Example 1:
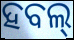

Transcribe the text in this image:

ହବଲ୍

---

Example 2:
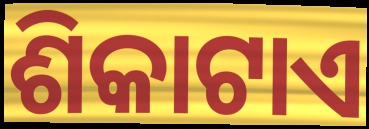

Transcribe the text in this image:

ଶିକାଟାଏ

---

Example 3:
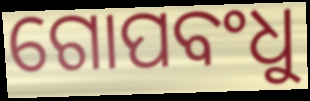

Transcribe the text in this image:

ଗୋପବଂଧୁ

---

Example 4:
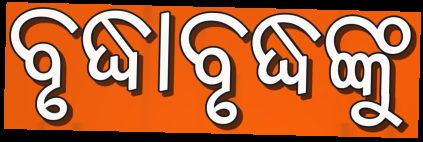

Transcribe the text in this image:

ବୃଦ୍ଧାବୃଦ୍ଧଙ୍କୁ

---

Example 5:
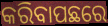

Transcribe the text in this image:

କରିବାପଛରେ